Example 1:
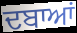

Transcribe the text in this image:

ਦਬਾਆਂ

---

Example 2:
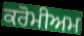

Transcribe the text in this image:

ਕਰੋਮੀਅਮ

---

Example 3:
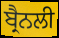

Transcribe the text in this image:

ਬ੍ਰੈਨਲੀ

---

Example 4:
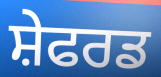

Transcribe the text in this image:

ਸ਼ੇਫਰਡ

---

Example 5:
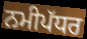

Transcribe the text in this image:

ਨਮੀਪੱਧਰ